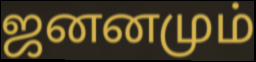
ஜனனமும்